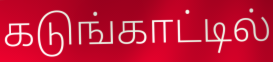
கடுங்காட்டில்